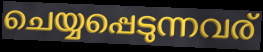
ചെയ്യപ്പെടുന്നവര്